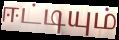
ஈட்டியும்